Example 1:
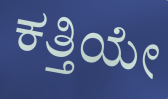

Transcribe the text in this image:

ಕತ್ತಿಯೇ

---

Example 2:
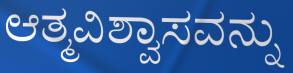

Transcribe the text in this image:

ಆತ್ಮವಿಶ್ವಾಸವನ್ನು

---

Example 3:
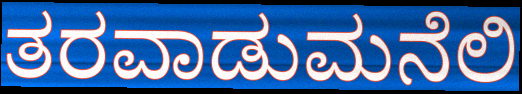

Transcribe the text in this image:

ತರವಾಡುಮನೆಲಿ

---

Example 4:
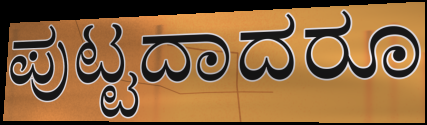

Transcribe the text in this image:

ಪುಟ್ಟದಾದರೂ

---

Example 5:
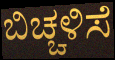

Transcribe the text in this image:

ಬಿಚ್ಚಳಿಸೆ